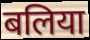
बलिया